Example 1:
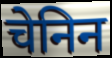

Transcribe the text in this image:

चेनिन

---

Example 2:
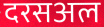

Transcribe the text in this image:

दरसअल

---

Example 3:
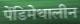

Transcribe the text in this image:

पेंडिमेथालीन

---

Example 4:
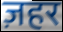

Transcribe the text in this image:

ज़हर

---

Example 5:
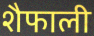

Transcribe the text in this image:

शैफाली